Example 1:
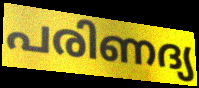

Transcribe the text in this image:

പരിണദ്യ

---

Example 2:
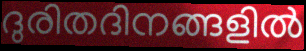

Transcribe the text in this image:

ദുരിതദിനങ്ങളിൽ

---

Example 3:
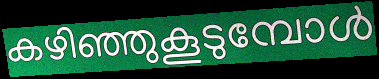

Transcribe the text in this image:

കഴിഞ്ഞുകൂടുമ്പോൾ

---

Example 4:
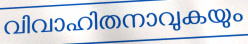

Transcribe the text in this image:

വിവാഹിതനാവുകയും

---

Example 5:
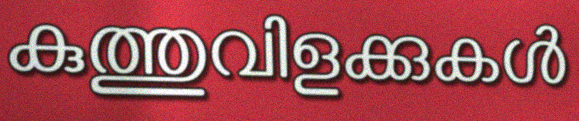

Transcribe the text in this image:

കുത്തുവിളക്കുകൾ